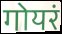
गोयरं